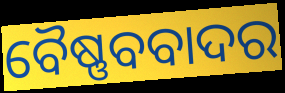
ବୈଷ୍ଣବବାଦର